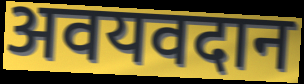
अवयवदान